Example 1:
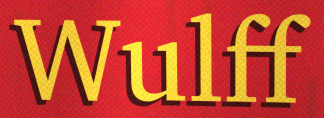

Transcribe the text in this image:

Wulff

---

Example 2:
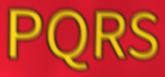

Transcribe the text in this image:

PQRS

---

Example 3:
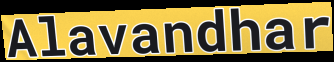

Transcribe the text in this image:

Alavandhar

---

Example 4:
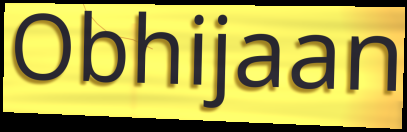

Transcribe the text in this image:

Obhijaan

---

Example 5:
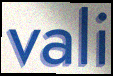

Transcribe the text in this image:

vali